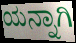
ಯನ್ನಾಗಿ